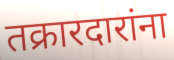
तक्रारदारांना